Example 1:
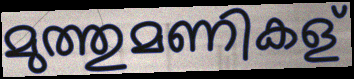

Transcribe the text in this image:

മുത്തുമണികള്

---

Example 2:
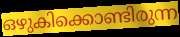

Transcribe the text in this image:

ഒഴുകിക്കൊണ്ടിരുന്ന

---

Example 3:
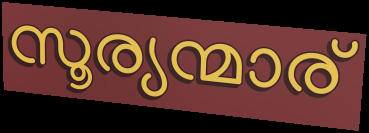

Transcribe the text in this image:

സൂര്യന്മാര്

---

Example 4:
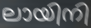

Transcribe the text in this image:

ലായിനി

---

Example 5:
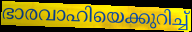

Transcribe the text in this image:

ഭാരവാഹിയെക്കുറിച്ച്